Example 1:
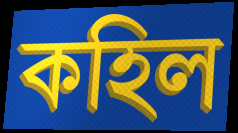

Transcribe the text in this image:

কহিল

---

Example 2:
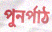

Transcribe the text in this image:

পুনর্পাঠ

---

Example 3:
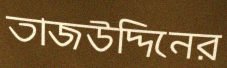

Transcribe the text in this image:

তাজউদ্দিনের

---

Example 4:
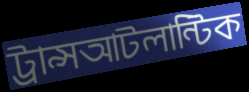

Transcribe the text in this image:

ট্রান্সআটলান্টিক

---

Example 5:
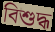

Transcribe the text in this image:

বিশুদ্ধ